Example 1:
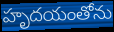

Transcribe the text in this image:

హృదయంతోను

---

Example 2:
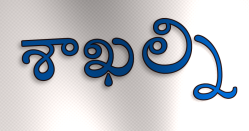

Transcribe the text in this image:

శాఖల్ని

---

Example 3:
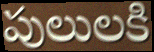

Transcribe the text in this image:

పులులకి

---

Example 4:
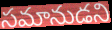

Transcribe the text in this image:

సమానుడని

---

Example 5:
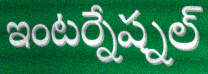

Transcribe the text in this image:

ఇంటర్నేష్నల్